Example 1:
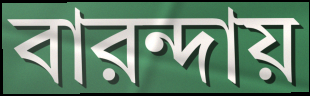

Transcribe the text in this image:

বারন্দায়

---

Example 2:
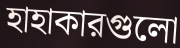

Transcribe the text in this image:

হাহাকারগুলো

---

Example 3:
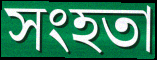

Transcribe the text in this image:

সংহতা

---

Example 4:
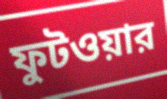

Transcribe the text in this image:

ফুটওয়ার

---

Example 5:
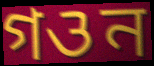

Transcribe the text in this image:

গওন